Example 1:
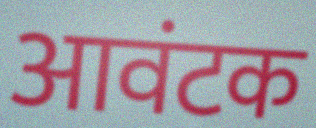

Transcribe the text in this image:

आवंटक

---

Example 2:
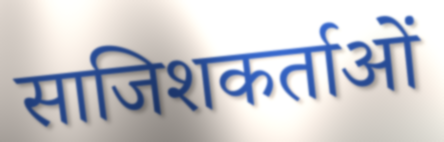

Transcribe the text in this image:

साजिशकर्ताओं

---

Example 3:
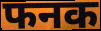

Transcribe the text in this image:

फनक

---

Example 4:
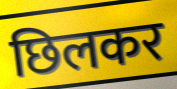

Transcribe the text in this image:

छिलकर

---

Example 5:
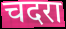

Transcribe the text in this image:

चदरा